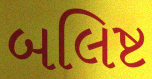
બલિષ્ટ